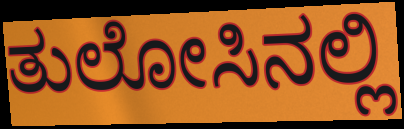
ತುಲೋಸಿನಲ್ಲಿ